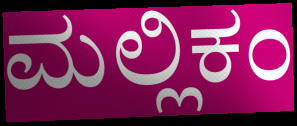
ಮಲ್ಲಿಕಂ